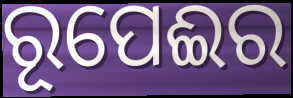
ରୂପେଈର